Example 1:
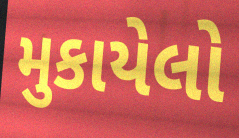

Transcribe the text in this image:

મુકાયેલો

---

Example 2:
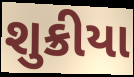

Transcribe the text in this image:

શુક્રીયા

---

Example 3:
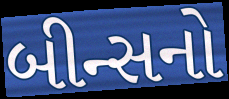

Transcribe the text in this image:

બીન્સનો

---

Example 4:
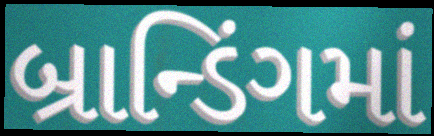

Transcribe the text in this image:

બ્રાન્ડિંગમાં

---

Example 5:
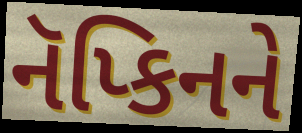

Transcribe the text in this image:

નૅપ્કિનને